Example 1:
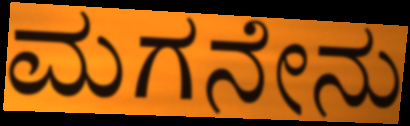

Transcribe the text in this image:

ಮಗನೇನು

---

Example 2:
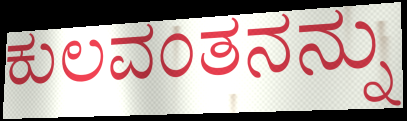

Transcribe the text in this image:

ಕುಲವಂತನನ್ನು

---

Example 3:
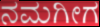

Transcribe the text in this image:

ನಮಗೀಗ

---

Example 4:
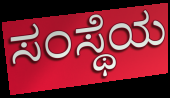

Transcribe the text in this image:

ಸಂಸ್ಥೆಯ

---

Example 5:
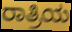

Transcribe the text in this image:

ರಾತ್ರಿಯ